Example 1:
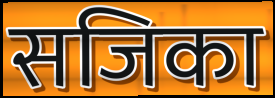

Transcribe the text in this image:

सजिका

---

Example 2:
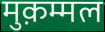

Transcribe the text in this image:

मुक़म्मल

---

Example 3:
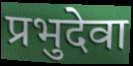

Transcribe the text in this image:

प्रभुदेवा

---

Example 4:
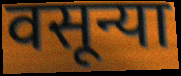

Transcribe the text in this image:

वसून्या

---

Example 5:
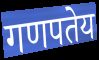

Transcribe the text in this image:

गणपतेय